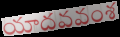
యాదవవంశ